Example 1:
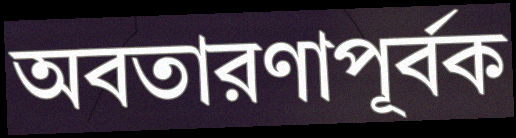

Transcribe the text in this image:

অবতারণাপূর্বক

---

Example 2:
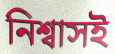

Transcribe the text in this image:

নিশ্বাসই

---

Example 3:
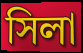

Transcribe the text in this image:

সিলা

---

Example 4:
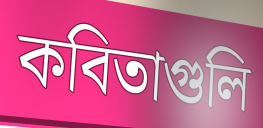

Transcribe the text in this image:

কবিতাগুলি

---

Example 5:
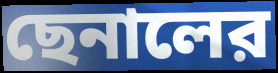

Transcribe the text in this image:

ছেনালের